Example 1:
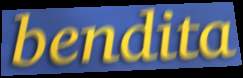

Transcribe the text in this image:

bendita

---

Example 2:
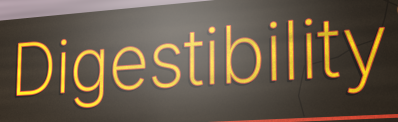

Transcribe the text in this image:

Digestibility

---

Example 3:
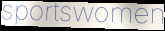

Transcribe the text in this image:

sportswomen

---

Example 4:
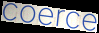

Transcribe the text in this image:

coerce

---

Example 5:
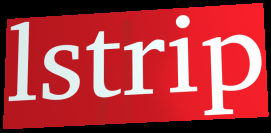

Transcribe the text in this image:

lstrip